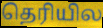
தெரியில